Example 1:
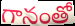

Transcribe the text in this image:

గానంతో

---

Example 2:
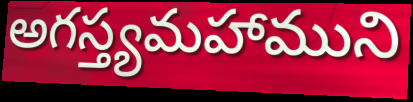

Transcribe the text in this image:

అగస్త్యమహాముని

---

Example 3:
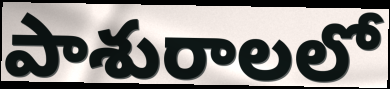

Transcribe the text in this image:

పాశురాలలో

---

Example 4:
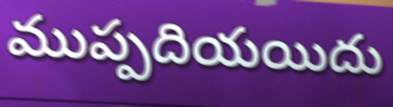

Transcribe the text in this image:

ముప్పదియయిదు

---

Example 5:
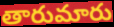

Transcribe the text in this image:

తారుమారు